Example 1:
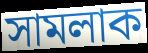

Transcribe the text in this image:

সামলাক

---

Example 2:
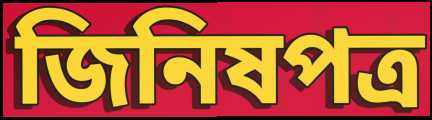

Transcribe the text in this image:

জিনিষপত্র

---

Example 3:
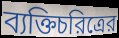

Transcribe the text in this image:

ব্যক্তিচরিত্রের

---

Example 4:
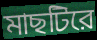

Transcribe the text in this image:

মাছটিরে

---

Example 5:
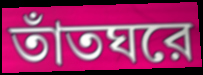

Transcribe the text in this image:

তাঁতঘরে